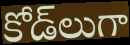
కోడ్‌లుగా